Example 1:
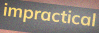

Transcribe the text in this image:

impractical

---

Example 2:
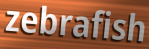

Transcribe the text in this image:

zebrafish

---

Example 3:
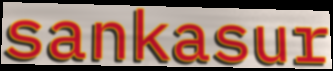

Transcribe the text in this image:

sankasur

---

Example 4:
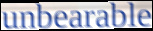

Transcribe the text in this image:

unbearable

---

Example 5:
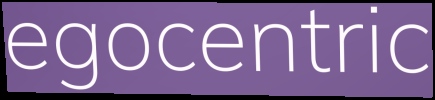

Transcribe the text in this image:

egocentric